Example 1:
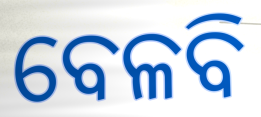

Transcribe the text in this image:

ବେଳବି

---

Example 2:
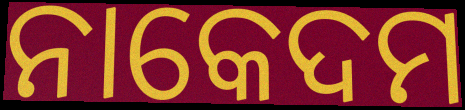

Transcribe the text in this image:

ନାକେଦମ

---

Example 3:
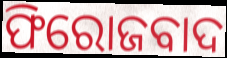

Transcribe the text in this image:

ଫିରୋଜବାଦ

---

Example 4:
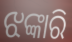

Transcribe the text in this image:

ଝଙ୍କାରି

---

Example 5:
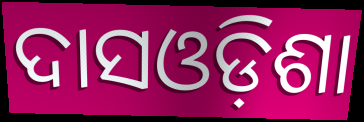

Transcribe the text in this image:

ଦାସଓଡ଼ିଶା